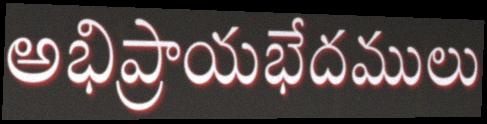
అభిప్రాయభేదములు